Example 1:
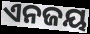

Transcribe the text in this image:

ଏନଜୟ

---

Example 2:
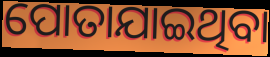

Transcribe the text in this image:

ପୋତାଯାଇଥିବା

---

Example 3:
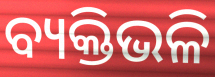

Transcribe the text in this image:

ବ୍ୟକ୍ତିଭଳି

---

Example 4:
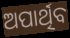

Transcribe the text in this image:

ଅପାର୍ଥିବ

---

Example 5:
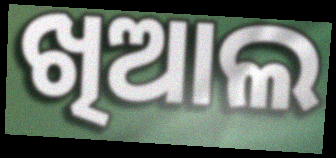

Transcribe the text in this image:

ଖିଆଲ